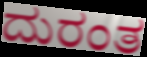
ದುರಂತ